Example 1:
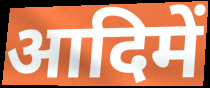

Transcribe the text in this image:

आदिमें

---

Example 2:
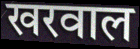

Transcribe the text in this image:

खरवाल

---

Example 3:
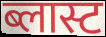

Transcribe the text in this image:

ब्लास्ट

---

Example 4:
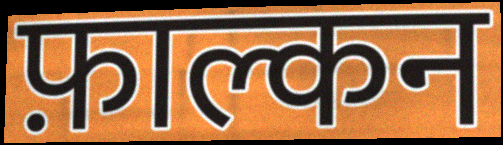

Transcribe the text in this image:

फ़ाल्कन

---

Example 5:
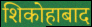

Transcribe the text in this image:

शिकोहाबाद